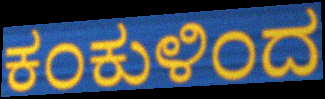
ಕಂಕುಳಿಂದ